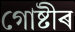
গোষ্টীৰ